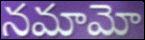
నమామో